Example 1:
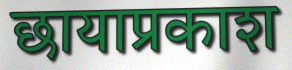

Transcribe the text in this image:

छायाप्रकाश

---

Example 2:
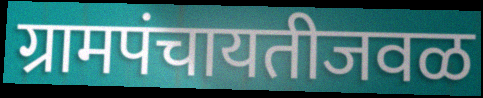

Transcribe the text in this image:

ग्रामपंचायतीजवळ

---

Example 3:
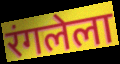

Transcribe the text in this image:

रंगलेला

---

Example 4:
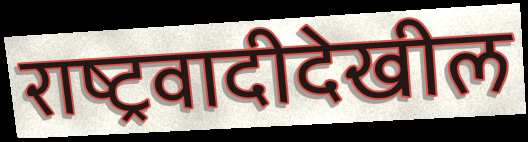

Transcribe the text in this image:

राष्ट्रवादीदेखील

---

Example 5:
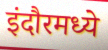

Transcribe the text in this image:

इंदौरमध्ये